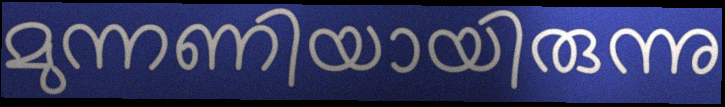
മുന്നണിയായിരുന്നു